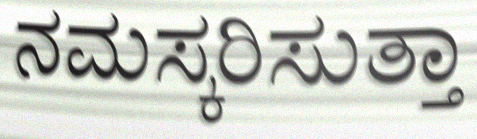
ನಮಸ್ಕರಿಸುತ್ತಾ